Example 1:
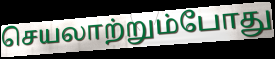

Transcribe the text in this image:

செயலாற்றும்போது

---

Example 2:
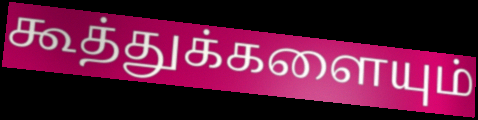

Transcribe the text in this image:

கூத்துக்களையும்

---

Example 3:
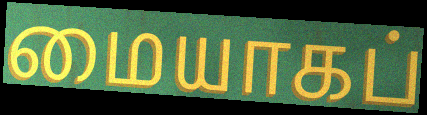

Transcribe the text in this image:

மையாகப்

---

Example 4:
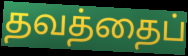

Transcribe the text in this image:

தவத்தைப்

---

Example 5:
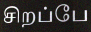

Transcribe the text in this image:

சிறப்பே